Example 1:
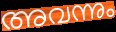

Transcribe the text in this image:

അവന്നും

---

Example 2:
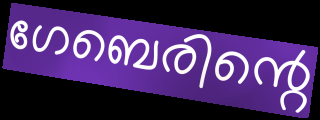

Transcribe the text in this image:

ഗേബെരിന്റെ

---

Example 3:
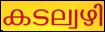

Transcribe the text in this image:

കടല്വഴി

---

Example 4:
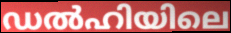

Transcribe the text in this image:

ഡൽഹിയിലെ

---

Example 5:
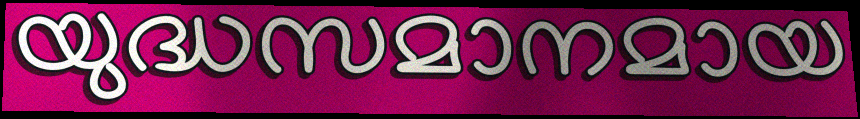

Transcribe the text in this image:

യുദ്ധസമാനമായ